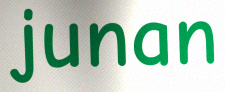
junan